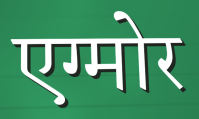
एग्मोर